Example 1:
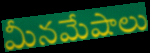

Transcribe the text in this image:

మీనమేషాలు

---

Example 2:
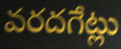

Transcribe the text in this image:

వరదగేట్లు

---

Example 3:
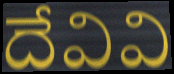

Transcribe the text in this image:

దేవివి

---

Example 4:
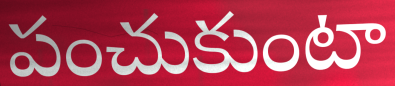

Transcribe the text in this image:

పంచుకుంటా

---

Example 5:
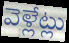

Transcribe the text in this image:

వెళ్లేట్లు